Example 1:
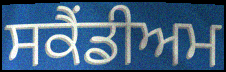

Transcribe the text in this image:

ਸਕੈਂਡੀਅਮ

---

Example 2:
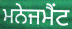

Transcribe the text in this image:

ਮਨੇਜਮੈਂਟ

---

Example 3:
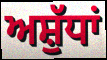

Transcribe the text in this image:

ਅਸ਼ੁੱਧਾਂ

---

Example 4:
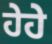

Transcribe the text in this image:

ਹੇਹੇ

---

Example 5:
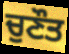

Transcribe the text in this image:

ਚੁਣੌਤ